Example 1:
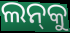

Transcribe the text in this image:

ଲନ୍‌କୁ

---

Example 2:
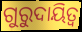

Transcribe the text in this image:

ଗୁରୁଦାୟିତ୍ଵ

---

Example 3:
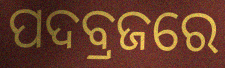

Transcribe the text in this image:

ପଦବ୍ରଜରେ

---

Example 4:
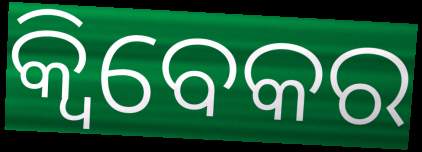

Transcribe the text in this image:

କ୍ୱିବେକର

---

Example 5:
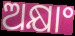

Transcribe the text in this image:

ଅକ୍ଷାଂ